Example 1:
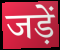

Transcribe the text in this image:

जड़ें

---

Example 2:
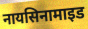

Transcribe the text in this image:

नायसिनामाइड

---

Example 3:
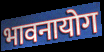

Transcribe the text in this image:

भावनायोग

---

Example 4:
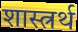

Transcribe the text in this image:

शास्त्रर्थ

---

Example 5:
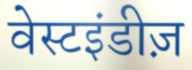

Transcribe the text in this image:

वेस्टइंडीज़